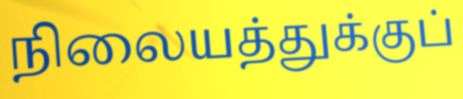
நிலையத்துக்குப்